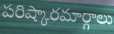
పరిష్కారమార్గాలు